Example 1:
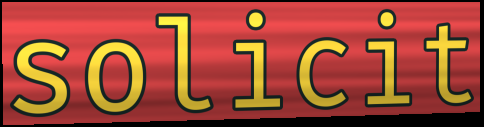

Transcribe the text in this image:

solicit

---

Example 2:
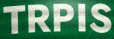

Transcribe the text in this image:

TRPIS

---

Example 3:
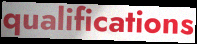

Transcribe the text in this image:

qualifications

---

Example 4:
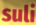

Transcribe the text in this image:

suli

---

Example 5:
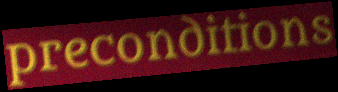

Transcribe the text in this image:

preconditions